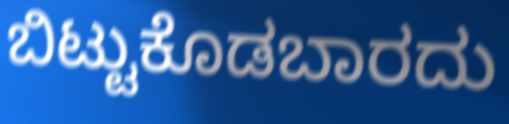
ಬಿಟ್ಟುಕೊಡಬಾರದು